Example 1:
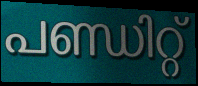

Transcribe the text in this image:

പണ്ഡിറ്റ്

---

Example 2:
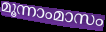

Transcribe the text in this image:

മൂന്നാംമാസം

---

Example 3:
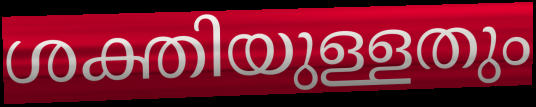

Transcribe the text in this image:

ശക്തിയുള്ളതും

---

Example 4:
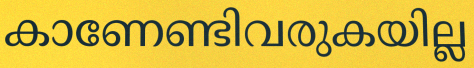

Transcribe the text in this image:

കാണേണ്ടിവരുകയില്ല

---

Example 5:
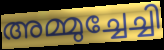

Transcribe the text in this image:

അമ്മുച്ചേച്ചി